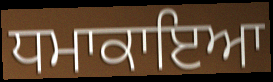
ਧਮਾਕਾਇਆ